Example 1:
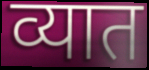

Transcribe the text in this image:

व्यात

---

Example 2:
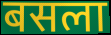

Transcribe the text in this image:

बसला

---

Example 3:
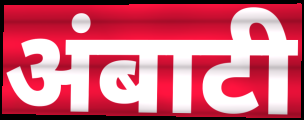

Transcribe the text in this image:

अंबाटी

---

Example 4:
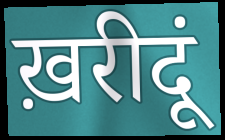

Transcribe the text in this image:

ख़रीदूं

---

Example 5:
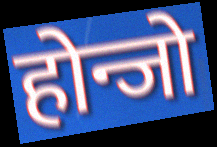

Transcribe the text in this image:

होन्जो